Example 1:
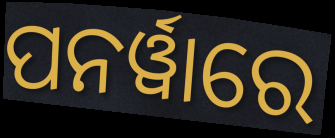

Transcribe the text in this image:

ପନର୍ୱାରେ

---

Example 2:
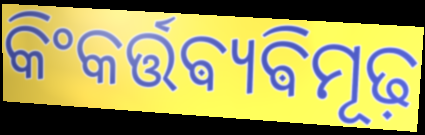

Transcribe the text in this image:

କିଂକର୍ତ୍ତଵ୍ଯଵିମୂଢ଼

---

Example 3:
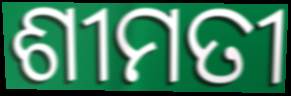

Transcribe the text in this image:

ଶୀମତୀ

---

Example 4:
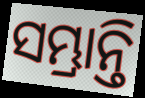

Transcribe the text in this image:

ସମ୍ଭ୍ରାନ୍ତି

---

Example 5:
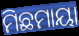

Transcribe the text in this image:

ମିଛମାୟା